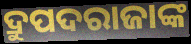
ଦ୍ରୁପଦରାଜାଙ୍କ